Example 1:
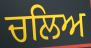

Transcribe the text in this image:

ਚਲਿਅ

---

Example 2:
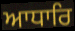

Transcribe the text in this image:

ਆਧਾਰਿ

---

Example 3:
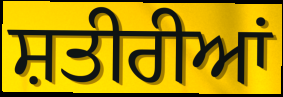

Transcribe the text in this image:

ਸ਼ਤੀਰੀਆਂ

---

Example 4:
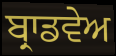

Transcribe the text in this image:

ਬ੍ਰਾਡਵੇਅ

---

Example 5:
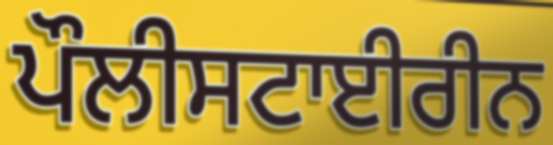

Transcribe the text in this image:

ਪੌਲੀਸਟਾਈਰੀਨ